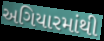
અગિયારમાંથી